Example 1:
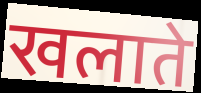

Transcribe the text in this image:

खलाते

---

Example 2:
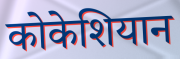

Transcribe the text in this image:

कोकेशियान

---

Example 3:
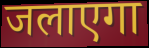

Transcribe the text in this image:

जलाएगा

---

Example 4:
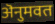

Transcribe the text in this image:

ऄनुमवत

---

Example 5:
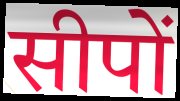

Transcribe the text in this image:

सीपों